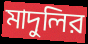
মাদুলির